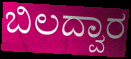
ಬಿಲದ್ವಾರ